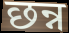
छन्न